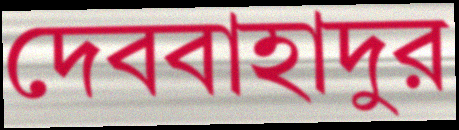
দেববাহাদুর